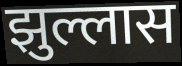
झुल्लास